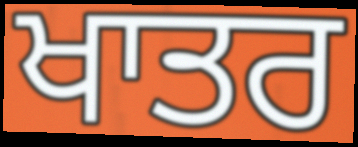
ਖਾਤਰ